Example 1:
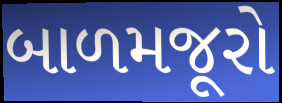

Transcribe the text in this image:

બાળમજૂરો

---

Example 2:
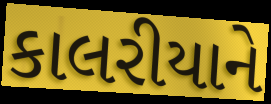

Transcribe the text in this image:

કાલરીયાને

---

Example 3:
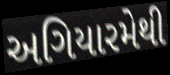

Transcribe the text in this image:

અગિયારમેથી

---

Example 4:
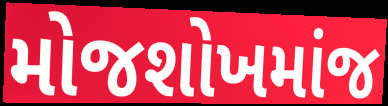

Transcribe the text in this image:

મોજશોખમાંજ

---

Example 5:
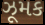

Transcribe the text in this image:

ઝૂમક